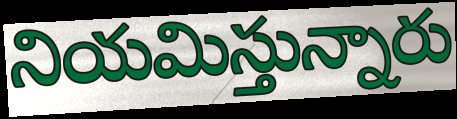
నియమిస్తున్నారు